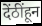
देंठींहून